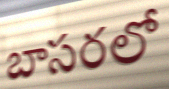
బాసరలో